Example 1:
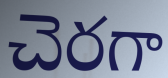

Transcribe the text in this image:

చెరగా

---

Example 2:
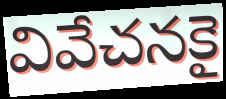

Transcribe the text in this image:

వివేచనకై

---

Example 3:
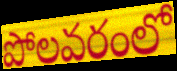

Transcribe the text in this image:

పోలవరంలో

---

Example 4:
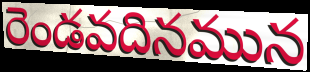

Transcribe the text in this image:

రెండవదినమున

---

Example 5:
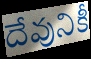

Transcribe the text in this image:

దేవునికీ